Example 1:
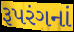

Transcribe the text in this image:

રૂપરંગનાં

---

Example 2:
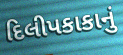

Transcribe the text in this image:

દિલીપકાકાનું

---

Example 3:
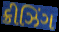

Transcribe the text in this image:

ક્રીઝિંગ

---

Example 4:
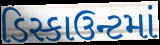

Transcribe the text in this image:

ડિસ્કાઉન્ટમાં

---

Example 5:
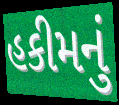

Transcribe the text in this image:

હકીમનું